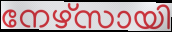
നേഴ്സായി